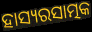
ହାସ୍ୟରସାତ୍ମକ